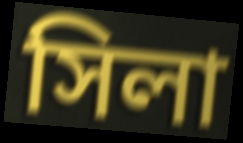
সিলা